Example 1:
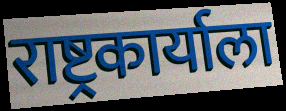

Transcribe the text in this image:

राष्ट्रकार्याला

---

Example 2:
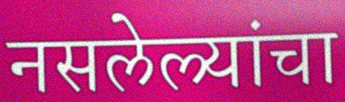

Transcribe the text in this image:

नसलेल्यांचा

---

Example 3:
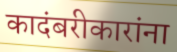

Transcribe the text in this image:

कादंबरीकारांना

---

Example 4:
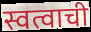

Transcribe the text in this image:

स्वत्वाची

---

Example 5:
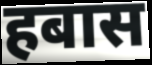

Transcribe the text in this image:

हबास